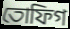
তোফিগ